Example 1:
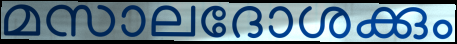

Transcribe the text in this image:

മസാലദോശക്കും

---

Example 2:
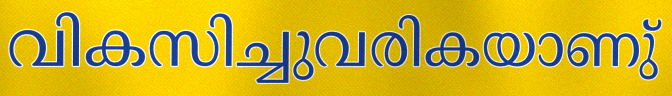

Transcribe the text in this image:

വികസിച്ചുവരികയാണു്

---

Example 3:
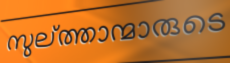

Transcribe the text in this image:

സുല്ത്താന്മാരുടെ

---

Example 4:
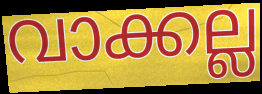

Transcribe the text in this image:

വാക്കല്ല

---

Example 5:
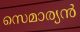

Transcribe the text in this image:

സെമാര്യൻ